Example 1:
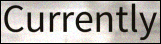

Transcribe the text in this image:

Currently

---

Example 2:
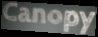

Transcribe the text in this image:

Canopy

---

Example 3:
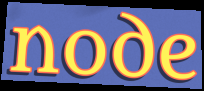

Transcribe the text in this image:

node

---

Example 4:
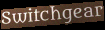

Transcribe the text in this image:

Switchgear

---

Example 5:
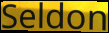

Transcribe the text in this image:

Seldon